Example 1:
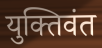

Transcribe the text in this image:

युक्तिवंत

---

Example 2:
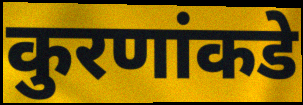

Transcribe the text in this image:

कुरणांकडे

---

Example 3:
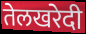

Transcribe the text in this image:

तेलखरेदी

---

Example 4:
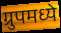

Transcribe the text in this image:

ग्रुपमध्ये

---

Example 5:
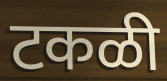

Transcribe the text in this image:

टकळी